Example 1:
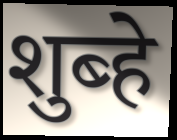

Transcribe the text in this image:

शुब्हे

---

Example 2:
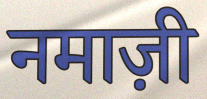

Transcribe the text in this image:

नमाज़ी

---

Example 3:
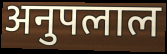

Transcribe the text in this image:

अनुपलाल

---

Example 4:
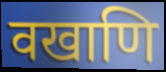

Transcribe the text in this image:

वखाणि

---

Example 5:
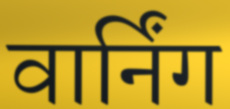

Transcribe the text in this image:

वार्निंग